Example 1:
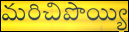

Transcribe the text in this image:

మరిచిపొయ్యి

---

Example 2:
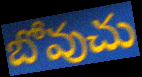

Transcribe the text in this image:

బోవుచు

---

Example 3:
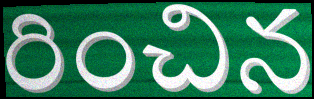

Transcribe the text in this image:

రించిన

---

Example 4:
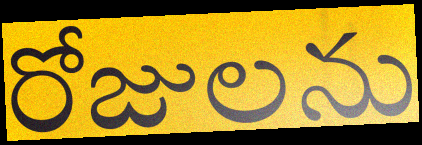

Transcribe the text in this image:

రోజులను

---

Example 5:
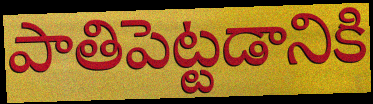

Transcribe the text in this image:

పాతిపెట్టడానికి